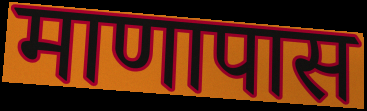
माणापास